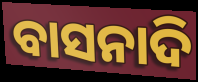
ବାସନାଦି